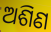
ଅଶିଣ